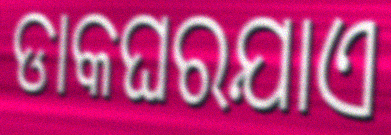
ଡାକଘରଯାଏ